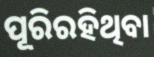
ପୂରିରହିଥିବା